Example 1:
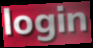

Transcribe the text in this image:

login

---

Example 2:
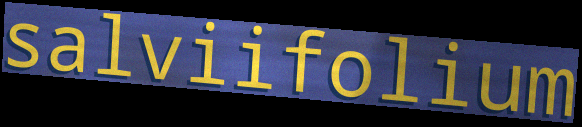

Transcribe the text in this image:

salviifolium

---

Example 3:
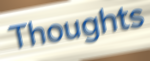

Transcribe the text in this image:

Thoughts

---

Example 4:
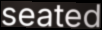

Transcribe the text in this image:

seated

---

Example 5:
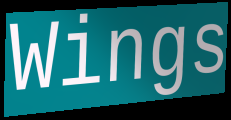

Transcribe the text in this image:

Wings